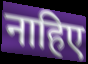
नाहिए